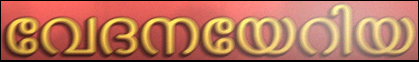
വേദനയേറിയ